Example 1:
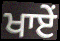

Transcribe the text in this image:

ਖਾਏਂ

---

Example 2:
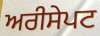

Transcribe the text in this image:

ਅਰੀਸੇਪਟ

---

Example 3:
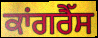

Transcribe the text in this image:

ਕਾਂਗਰੈੱਸ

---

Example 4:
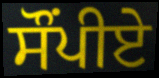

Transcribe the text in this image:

ਸੌਂਪੀਏ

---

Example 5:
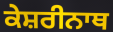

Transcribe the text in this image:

ਕੇਸ਼ਰੀਨਾਥ